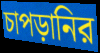
চাপড়ানির